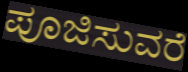
ಪೂಜಿಸುವರೆ